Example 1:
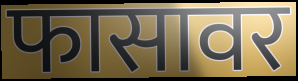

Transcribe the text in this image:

फासावर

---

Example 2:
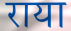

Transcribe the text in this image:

राया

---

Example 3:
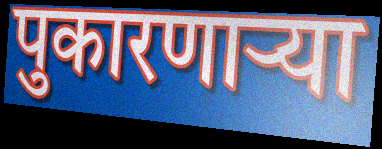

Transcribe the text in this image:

पुकारणार्‍या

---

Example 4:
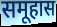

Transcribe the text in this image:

समूहास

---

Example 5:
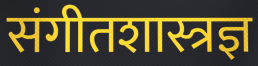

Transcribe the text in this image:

संगीतशास्त्रज्ञ